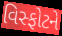
વિસ્ફોટને